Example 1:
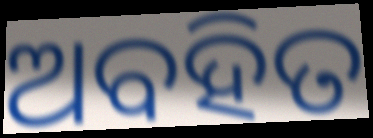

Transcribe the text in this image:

ଅବହିତ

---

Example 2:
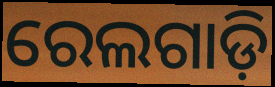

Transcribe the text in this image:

ରେଲଗାଡ଼ି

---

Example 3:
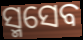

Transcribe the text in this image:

ସ୍ମସେବ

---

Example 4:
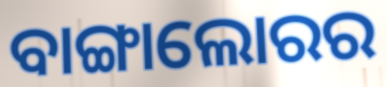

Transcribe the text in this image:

ବାଙ୍ଗାଲୋରର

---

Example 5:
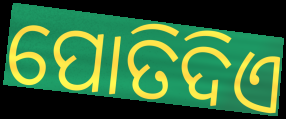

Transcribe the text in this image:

ପୋତିଦିଏ